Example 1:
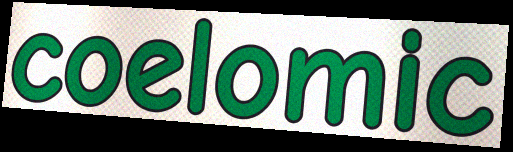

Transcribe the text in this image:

coelomic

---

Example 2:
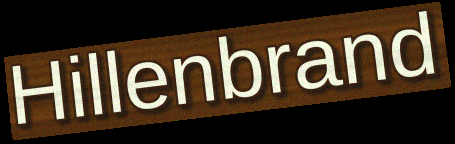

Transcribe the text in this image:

Hillenbrand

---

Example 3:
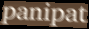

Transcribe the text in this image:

panipat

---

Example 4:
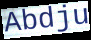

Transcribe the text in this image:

Abdju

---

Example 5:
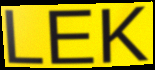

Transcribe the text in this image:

LEK